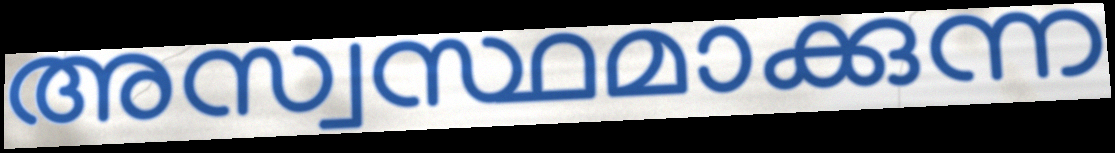
അസ്വസ്ഥമാക്കുന്ന